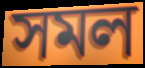
সমল